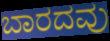
ಬಾರದವು